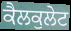
ਕੈਲਕੁਲੇਟ